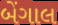
બેંગાલ